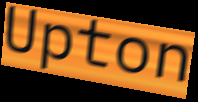
Upton